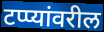
टप्प्यांवरील